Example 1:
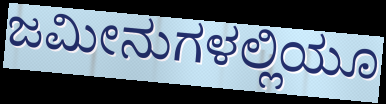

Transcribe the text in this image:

ಜಮೀನುಗಳಲ್ಲಿಯೂ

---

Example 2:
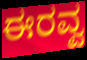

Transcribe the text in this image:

ಈರವ್ವ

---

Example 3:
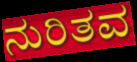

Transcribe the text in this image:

ನುರಿತವ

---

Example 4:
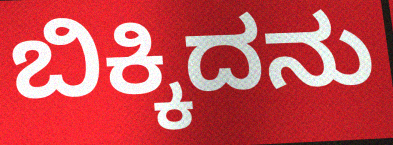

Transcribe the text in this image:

ಬಿಕ್ಕಿದನು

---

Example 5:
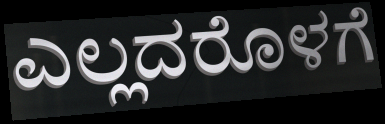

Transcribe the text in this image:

ಎಲ್ಲದರೊಳಗೆ